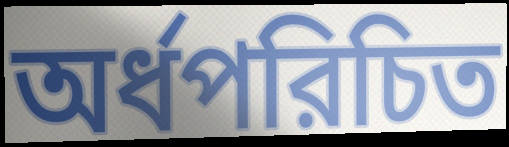
অর্ধপরিচিত